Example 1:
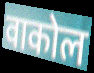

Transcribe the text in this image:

वाकोल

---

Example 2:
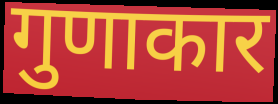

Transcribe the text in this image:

गुणाकार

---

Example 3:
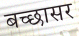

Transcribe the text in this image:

बच्छासर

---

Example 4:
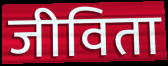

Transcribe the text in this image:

जीविता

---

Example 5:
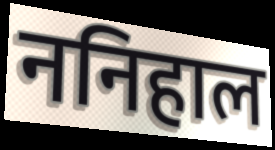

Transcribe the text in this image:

ननिहाल